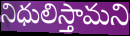
నిధులిస్తామని